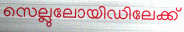
സെല്ലുലോയിഡിലേക്ക്